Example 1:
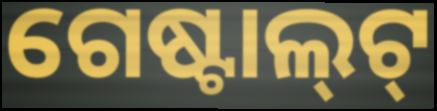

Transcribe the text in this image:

ଗେଷ୍ଟାଲ୍‌ଟ୍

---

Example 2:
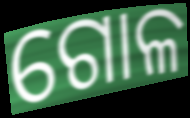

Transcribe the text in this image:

ଗୋଳ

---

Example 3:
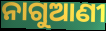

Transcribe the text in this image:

ନାଗୁଆଣୀ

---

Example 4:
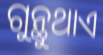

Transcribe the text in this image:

ଗୁନ୍ଥୁଥାଏ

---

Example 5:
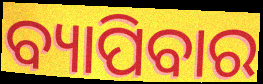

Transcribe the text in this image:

ବ୍ୟାପିବାର